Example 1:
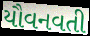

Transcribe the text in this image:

યૌવનવતી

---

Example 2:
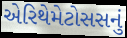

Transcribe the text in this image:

એરિથેમેટોસસનું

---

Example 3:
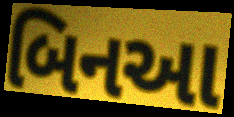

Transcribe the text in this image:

બિનઆ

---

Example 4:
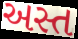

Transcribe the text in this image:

અસ્ત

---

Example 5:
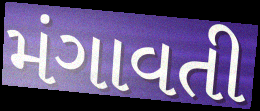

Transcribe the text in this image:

મંગાવતી